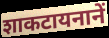
शाकटायनानें